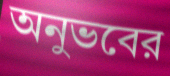
অনুভবের